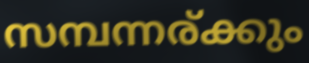
സമ്പന്നര്ക്കും